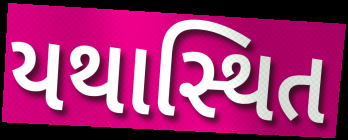
યથાસ્થિત